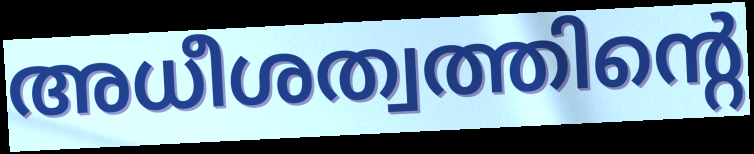
അധീശത്വത്തിന്റെ